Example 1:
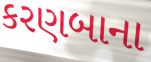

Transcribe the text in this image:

કરણબાના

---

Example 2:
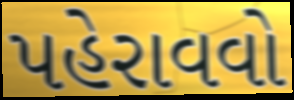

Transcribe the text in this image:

પહેરાવવો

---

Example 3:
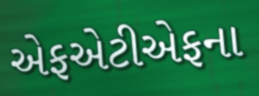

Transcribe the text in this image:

એફએટીએફના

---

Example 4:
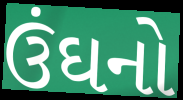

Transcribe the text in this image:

ઉંઘનો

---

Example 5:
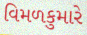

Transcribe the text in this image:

વિમળકુમારે